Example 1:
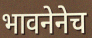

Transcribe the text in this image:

भावनेनेच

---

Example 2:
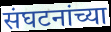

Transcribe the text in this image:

संघटनांच्या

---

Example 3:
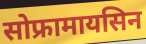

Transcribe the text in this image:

सोफ्रामायसिन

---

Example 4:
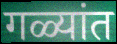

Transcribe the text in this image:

गळ्यांत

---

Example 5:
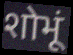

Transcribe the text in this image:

शोभूं